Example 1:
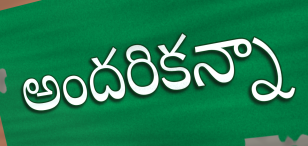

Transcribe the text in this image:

అందరికన్నా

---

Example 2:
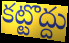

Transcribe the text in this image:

కట్టొద్దు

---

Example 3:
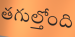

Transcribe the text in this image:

తగుల్తోంది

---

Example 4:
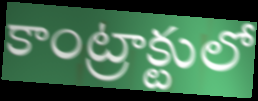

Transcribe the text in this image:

కాంట్రాక్టులో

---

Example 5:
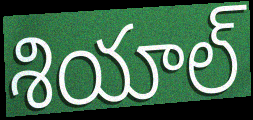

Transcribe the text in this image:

శియాల్